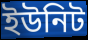
ইউনিট